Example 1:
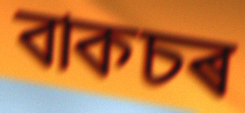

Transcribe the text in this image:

বাকচৰ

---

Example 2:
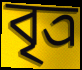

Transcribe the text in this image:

বৃত্ৰ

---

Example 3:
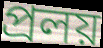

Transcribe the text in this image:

প্ৰলয়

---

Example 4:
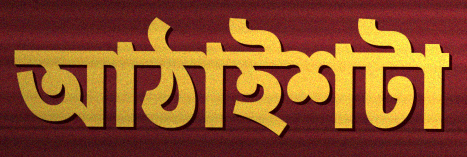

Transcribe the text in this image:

আঠাইশটা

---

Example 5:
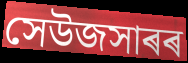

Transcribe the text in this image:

সেউজসাৰৰ